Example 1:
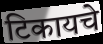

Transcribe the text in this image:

टिकायचे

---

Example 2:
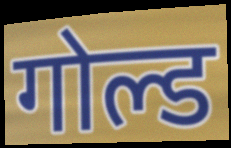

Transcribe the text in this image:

गोल्ड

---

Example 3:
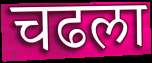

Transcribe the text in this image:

चढला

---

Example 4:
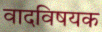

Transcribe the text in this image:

वादविषयक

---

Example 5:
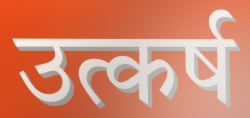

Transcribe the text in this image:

उत्कर्ष